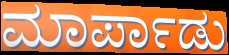
ಮಾರ್ಪಾಡು